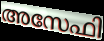
അസേഫി